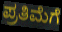
ಪ್ರತಿಮೆಗೆ